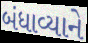
બંધાવ્યાને